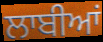
ਲਾਬੀਆਂ